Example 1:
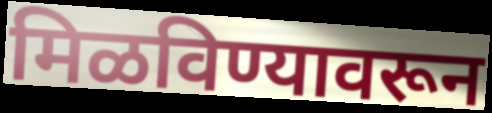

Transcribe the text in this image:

मिळविण्यावरून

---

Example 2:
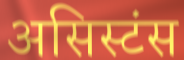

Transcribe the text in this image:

असिस्टंस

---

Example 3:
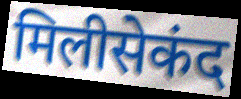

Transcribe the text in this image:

मिलीसेकंद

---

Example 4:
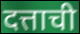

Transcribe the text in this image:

दत्ताची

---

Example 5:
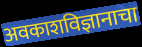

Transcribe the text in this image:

अवकाशविज्ञानाचा